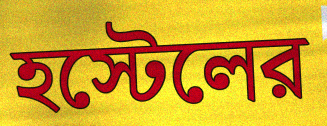
হস্টেলের